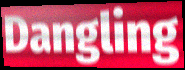
Dangling